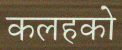
कलहको